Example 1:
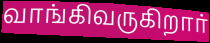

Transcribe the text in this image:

வாங்கிவருகிறார்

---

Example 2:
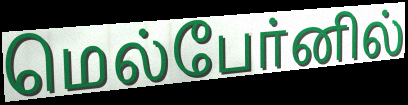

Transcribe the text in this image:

மெல்பேர்னில்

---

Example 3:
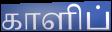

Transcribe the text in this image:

காளிப்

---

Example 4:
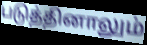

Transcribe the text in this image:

படுத்தினாலும்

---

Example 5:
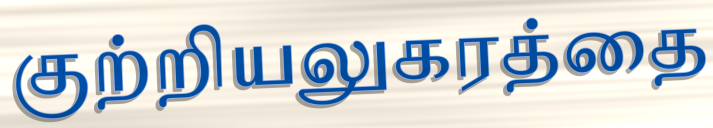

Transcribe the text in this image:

குற்றியலுகரத்தை